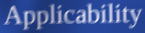
Applicability